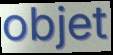
objet